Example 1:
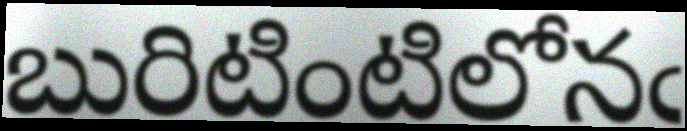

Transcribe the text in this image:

బురిటింటిలోనఁ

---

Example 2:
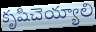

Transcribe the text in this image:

కృషిచెయ్యాలి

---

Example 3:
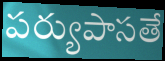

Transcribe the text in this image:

పర్యుపాసతే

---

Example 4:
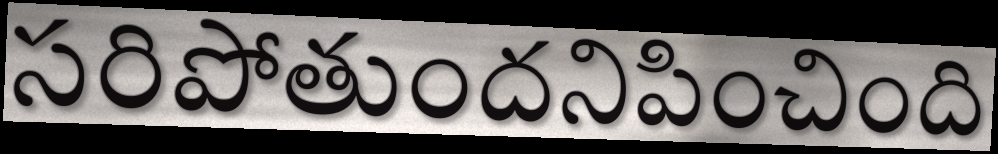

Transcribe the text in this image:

సరిపోతుందనిపించింది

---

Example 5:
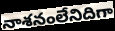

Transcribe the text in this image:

నాశనంలేనిదిగా